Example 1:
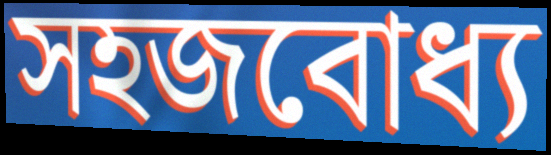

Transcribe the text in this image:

সহজবোধ্য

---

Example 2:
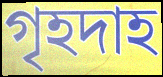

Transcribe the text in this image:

গৃহদাহ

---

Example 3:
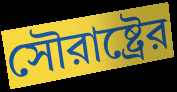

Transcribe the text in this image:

সৌরাষ্ট্রের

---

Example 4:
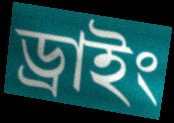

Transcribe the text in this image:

ড্রাইং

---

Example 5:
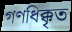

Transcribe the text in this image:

গণধিক্কৃত